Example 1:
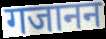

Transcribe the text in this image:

गजानन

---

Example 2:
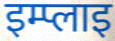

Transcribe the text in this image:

इम्प्लाइ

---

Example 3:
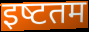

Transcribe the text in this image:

इष्‍टतम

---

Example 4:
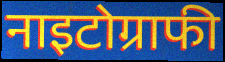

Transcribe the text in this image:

नाइटोग्राफी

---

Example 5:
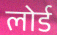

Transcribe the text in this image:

लोर्ड